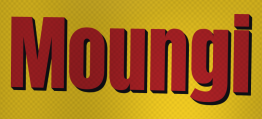
Moungi